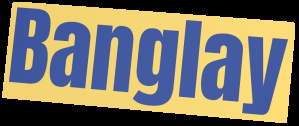
Banglay